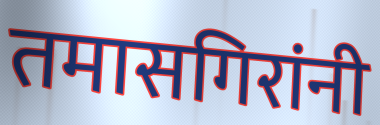
तमासगिरांनी